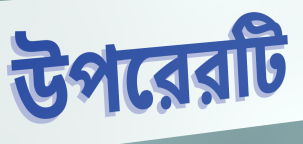
উপরেরটি